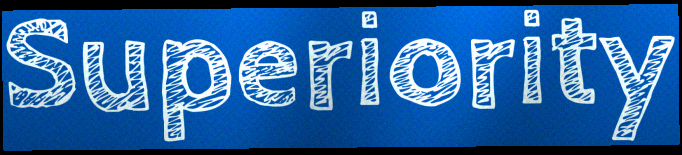
Superiority